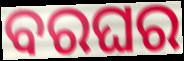
ବରଘର